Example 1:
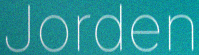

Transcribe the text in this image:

Jorden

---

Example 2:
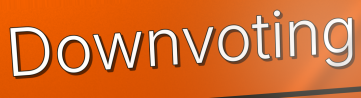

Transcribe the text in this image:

Downvoting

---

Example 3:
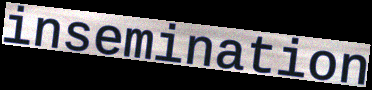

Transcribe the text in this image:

insemination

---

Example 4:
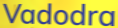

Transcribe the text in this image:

Vadodra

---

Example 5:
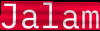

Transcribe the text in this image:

Jalam